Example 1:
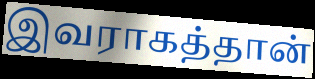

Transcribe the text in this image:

இவராகத்தான்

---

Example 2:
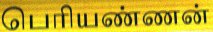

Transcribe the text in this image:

பெரியண்ணன்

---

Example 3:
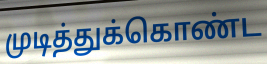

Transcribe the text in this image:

முடித்துக்கொண்ட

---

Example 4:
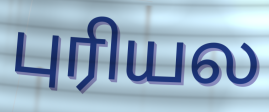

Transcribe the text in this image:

புரியல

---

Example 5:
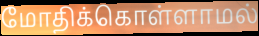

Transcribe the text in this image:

மோதிக்கொள்ளாமல்